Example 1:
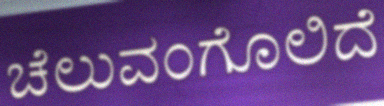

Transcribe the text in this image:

ಚೆಲುವಂಗೊಲಿದೆ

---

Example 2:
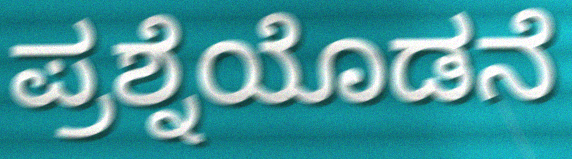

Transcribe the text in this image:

ಪ್ರಶ್ನೆಯೊಡನೆ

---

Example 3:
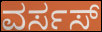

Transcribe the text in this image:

ವರ್ಸಸ್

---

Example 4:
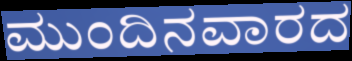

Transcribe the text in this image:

ಮುಂದಿನವಾರದ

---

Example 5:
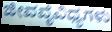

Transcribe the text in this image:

ಜೀವವೈವಿಧ್ಯಗಳು